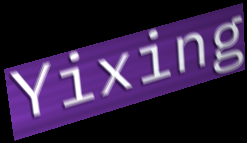
Yixing